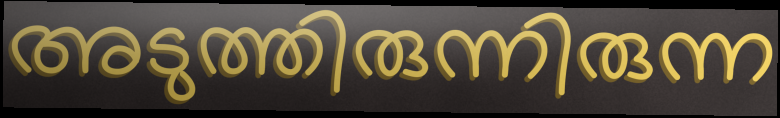
അടുത്തിരുന്നിരുന്ന